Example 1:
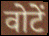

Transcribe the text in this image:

वोटें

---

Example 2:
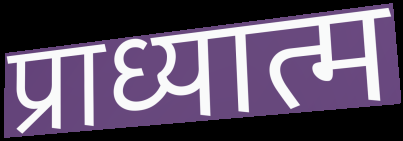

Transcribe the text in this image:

प्राध्यात्म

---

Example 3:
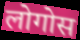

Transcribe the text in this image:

लोगोस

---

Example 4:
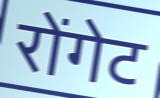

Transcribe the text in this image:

रोंगेट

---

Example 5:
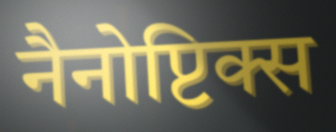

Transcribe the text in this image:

नैनोप्टिक्स